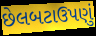
છેલબટાઉપણું